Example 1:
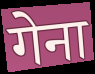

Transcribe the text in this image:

गेना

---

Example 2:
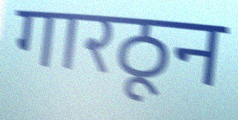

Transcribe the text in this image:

गारठून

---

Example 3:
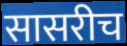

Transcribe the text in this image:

सासरीच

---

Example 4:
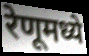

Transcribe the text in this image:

रेणूमध्ये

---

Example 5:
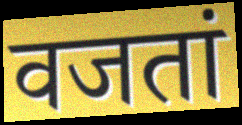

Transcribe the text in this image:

वजतां